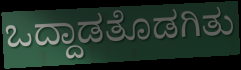
ಒದ್ದಾಡತೊಡಗಿತು